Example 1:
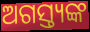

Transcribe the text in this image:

ଅଗସ୍ତ୍ୟଙ୍କ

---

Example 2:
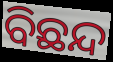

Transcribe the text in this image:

ବିଛନ୍ଦ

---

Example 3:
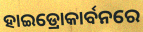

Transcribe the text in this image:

ହାଇଡ୍ରୋକାର୍ବନରେ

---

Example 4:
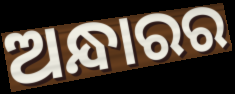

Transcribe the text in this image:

ଅନ୍ଧାରର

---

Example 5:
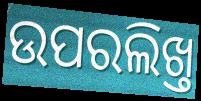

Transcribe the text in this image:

ଉପରଲିଖ୍ତ